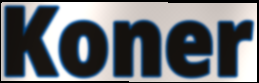
Koner